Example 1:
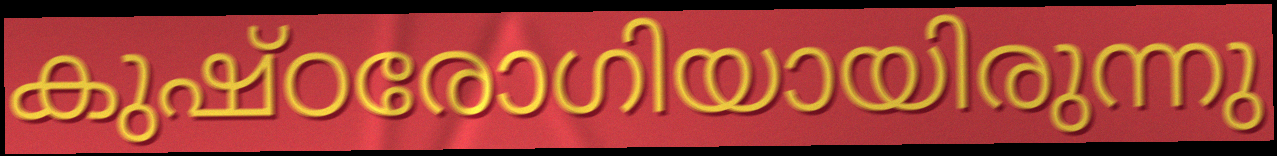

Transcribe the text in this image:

കുഷ്ഠരോഗിയായിരുന്നു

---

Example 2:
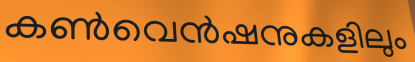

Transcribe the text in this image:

കൺവെൻഷനുകളിലും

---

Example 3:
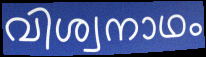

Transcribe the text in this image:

വിശ്വനാഥം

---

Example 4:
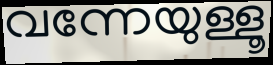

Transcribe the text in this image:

വന്നേയുള്ളൂ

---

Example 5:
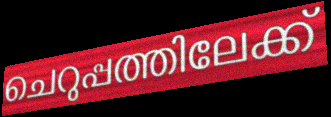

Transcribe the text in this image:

ചെറുപ്പത്തിലേക്ക്